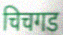
चिचगड